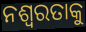
ନଶ୍ବରତାକୁ